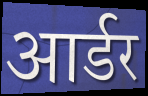
आर्डर